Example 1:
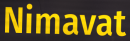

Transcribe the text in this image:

Nimavat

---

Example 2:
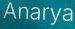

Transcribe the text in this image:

Anarya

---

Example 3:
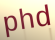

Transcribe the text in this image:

phd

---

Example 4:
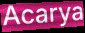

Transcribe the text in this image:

Acarya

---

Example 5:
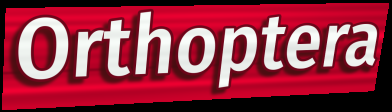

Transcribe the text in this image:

Orthoptera